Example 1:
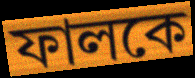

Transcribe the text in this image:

ফালকে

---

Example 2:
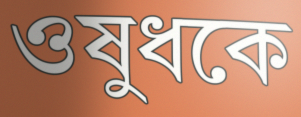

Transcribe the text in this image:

ওষুধকে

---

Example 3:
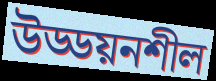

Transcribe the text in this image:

উড্ডয়নশীল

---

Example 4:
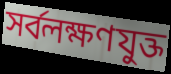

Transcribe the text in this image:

সর্বলক্ষণযুক্ত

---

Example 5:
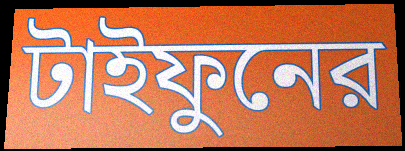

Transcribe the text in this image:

টাইফুনের